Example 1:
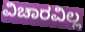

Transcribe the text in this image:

ವಿಚಾರವಿಲ್ಲ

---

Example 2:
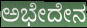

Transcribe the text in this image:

ಅಭೇದೇನ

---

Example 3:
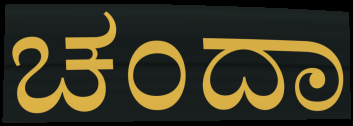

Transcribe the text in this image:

ಚಂದಾ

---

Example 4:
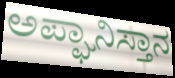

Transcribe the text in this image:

ಅಪ್ಘಾನಿಸ್ತಾನ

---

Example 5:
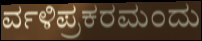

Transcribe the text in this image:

ರ್ವಳಿಪ್ರಕರಮಂದು